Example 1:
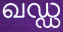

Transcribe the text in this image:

ഖഡ്ഡ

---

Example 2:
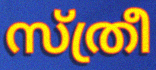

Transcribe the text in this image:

സ്ത്രീ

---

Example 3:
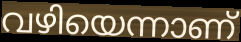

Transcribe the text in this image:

വഴിയെന്നാണ്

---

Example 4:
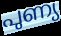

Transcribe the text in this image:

പുണ്യ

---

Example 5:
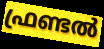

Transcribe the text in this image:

ഫ്രണ്ടൽ